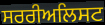
ਸਰਰੀਅਲਿਸਟ